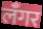
लँगर